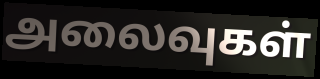
அலைவுகள்